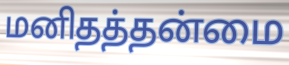
மனிதத்தன்மை